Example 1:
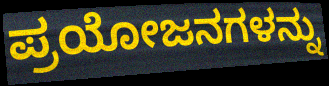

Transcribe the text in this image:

ಪ್ರಯೋಜನಗಳನ್ನು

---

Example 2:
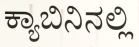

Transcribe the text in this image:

ಕ್ಯಾಬಿನಿನಲ್ಲಿ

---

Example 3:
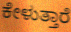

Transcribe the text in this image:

ಕೇಳುತ್ತಾರೆ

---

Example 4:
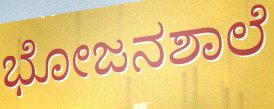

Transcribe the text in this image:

ಭೋಜನಶಾಲೆ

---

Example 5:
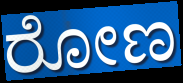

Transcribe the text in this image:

ರೋಣ